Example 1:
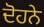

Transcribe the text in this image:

ਦੋਹਨੇ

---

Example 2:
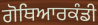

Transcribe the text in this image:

ਗੋਥਿਆਰਕੰਡੀ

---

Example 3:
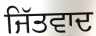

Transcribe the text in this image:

ਜਿੱਤਵਾਦ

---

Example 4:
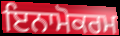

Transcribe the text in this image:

ਇਨਾਮੋਕਰਮ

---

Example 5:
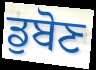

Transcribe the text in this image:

ਡੁਬੋਣ